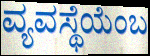
ವ್ಯವಸ್ಥೆಯೆಂಬ